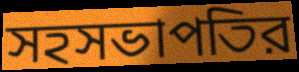
সহসভাপতির